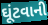
ઘૂંટવાની